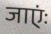
जाएंः